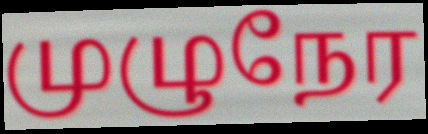
முழுநேர